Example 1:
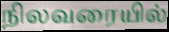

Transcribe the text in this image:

நிலவரையில்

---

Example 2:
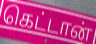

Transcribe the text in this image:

கெட்டான்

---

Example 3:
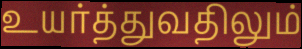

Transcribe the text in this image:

உயர்த்துவதிலும்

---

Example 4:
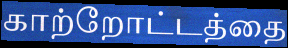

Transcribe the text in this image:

காற்றோட்டத்தை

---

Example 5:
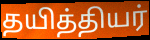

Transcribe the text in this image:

தயித்தியர்